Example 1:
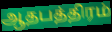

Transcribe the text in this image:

ஆதபத்திரம்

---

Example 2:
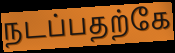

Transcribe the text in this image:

நடப்பதற்கே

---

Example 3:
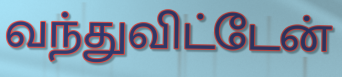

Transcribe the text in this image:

வந்துவிட்டேன்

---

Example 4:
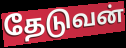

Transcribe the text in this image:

தேடுவன்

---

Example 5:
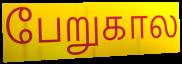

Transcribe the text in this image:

பேறுகால